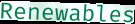
Renewables